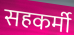
सहकर्मी